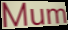
Mum